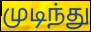
முடிந்து